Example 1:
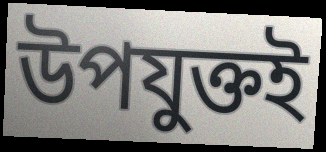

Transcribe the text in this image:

উপযুক্তই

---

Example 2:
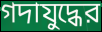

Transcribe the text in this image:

গদাযুদ্ধের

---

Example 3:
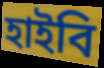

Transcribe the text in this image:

হাইবি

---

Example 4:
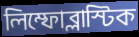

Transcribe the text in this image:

লিম্ফোব্লাস্টিক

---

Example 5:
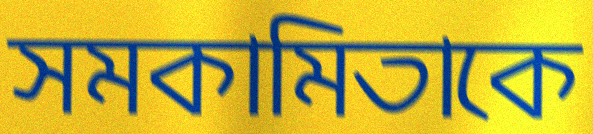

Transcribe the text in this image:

সমকামিতাকে